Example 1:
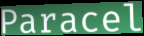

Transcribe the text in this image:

Paracel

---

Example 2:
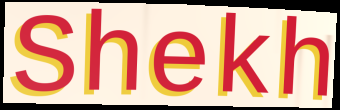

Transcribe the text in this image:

Shekh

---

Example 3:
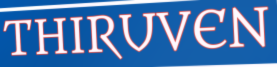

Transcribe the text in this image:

THIRUVEN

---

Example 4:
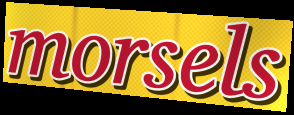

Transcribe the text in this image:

morsels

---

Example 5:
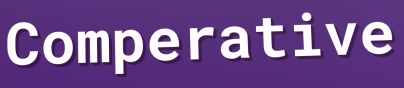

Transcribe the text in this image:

Comperative